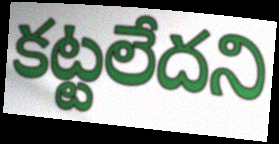
కట్టలేదని